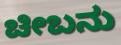
ಚೀಬನು